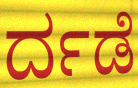
ರ್ದಡೆ